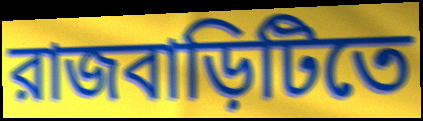
রাজবাড়িটিতে